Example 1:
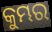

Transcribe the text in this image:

କୁମ୍ଭର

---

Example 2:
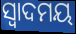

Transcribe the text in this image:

ସ୍ଵାଦମୟ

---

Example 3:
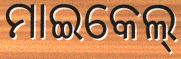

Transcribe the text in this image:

ମାଇକେଲ୍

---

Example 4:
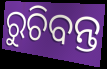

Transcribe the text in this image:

ରୁଚିବନ୍ତ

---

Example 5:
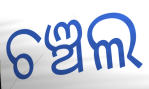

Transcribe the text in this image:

ଚଞ୍ଚଲ